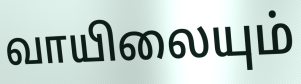
வாயிலையும்